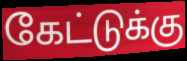
கேட்டுக்கு